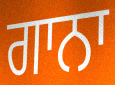
ਗਾਨਾ